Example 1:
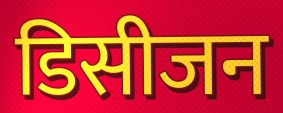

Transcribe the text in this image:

डिसीजन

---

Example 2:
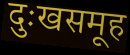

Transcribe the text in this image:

दुःखसमूह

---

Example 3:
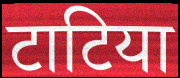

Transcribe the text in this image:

टाटिया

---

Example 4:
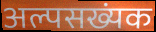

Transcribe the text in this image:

अल्पसख्यंक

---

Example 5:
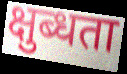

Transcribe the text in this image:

क्षुब्धता